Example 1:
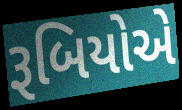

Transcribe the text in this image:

રૂબિયોએ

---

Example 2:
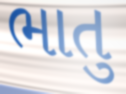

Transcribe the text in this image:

ભાતુ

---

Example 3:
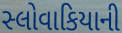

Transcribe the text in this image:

સ્લોવાકિયાની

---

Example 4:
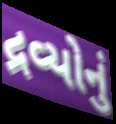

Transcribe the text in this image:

દ્રવ્યોનું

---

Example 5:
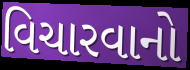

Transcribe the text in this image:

વિચારવાનો